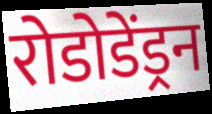
रोडोडेंड्रन